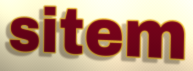
sitem